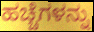
ಹಚ್ಚೆಗಳನ್ನು